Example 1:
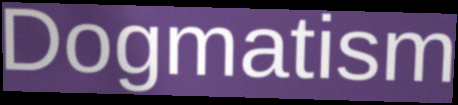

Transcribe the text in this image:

Dogmatism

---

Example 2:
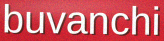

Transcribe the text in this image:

buvanchi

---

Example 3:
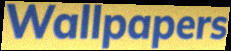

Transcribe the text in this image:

Wallpapers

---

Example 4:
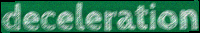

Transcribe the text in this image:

deceleration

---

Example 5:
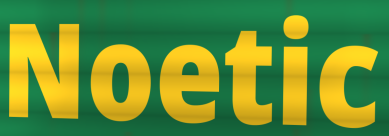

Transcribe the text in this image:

Noetic